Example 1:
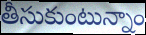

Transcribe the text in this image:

తీసుకుంటున్నాం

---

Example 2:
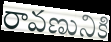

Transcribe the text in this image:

రావణునికి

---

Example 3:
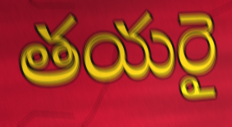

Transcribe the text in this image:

తయరై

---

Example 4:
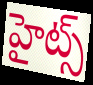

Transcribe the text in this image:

హైట్స్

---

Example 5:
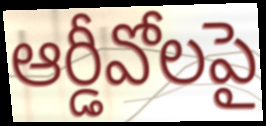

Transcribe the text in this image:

ఆర్డీవోలపై